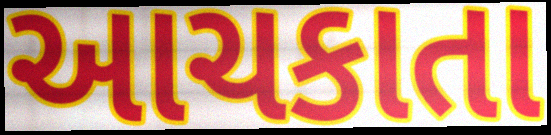
આચકાતા